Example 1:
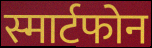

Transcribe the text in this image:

स्‍मार्टफोन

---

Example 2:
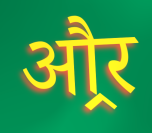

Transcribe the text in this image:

औ्रर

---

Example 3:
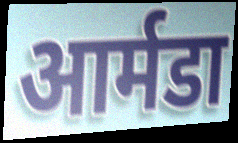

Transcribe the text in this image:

आर्मडा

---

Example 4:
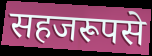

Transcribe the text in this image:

सहजरूपसे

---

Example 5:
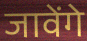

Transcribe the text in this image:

जावेंगे